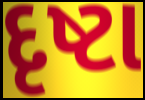
દૃષ્ટા